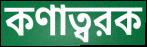
কণাত্বরক